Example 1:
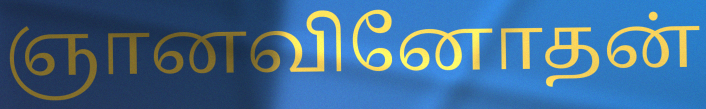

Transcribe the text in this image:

ஞானவினோதன்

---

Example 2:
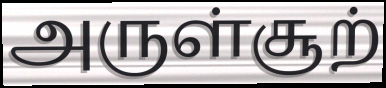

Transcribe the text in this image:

அருள்சூற்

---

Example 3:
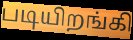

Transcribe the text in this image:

படியிறங்கி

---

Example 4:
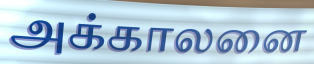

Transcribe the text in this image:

அக்காலனை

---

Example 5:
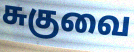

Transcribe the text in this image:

சுகுவை